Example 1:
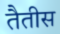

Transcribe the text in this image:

तैतीस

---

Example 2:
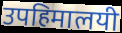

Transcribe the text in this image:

उपहिमालयी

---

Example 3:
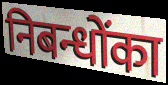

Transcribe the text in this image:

निबन्धोंका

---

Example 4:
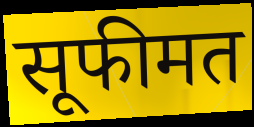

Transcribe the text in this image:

सूफीमत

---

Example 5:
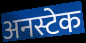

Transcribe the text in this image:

अनस्टेक